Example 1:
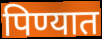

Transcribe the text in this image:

पिण्यात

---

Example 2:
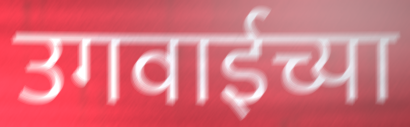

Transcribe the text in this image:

उगवाईच्या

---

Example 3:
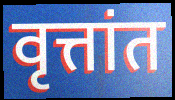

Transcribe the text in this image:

वृत्तांत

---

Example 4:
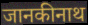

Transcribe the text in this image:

जानकीनाथ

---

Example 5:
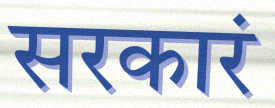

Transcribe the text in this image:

सरकारं